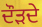
ਦੌੜਦੇ